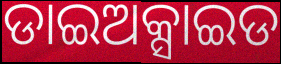
ଡାଇଅକ୍ସାଇଡ